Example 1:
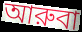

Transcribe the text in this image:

আরুবা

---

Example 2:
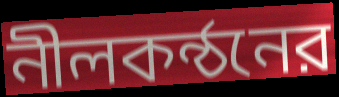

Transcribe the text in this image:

নীলকন্ঠনের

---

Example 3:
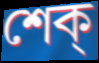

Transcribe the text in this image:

শেক্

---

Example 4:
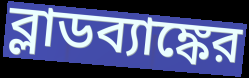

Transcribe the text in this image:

ব্লাডব্যাঙ্কের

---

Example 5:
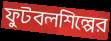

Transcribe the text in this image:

ফুটবলশিল্পের